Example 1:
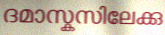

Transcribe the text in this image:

ദമാസ്കസിലേക്കു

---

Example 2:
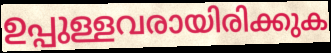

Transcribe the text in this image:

ഉപ്പുള്ളവരായിരിക്കുക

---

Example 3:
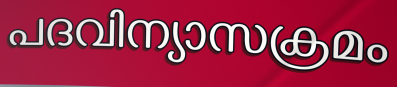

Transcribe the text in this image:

പദവിന്യാസക്രമം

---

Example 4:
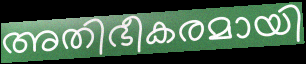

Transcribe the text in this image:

അതിഭീകരമായി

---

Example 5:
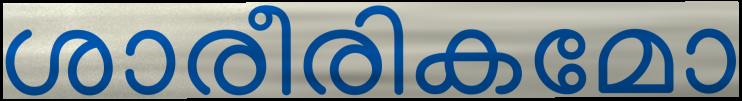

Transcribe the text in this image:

ശാരീരികമോ